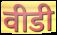
वीडी